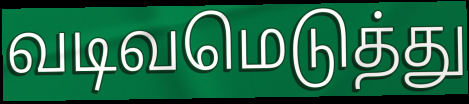
வடிவமெடுத்து